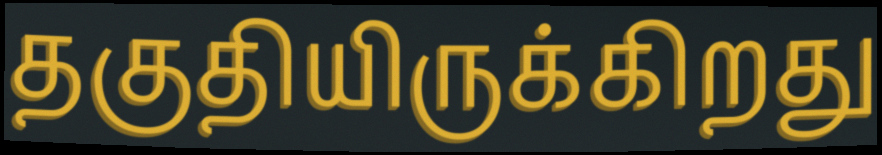
தகுதியிருக்கிறது